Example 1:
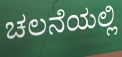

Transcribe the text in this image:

ಚಲನೆಯಲ್ಲಿ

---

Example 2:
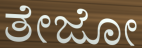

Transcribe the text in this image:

ತೇಜೋ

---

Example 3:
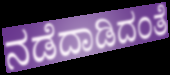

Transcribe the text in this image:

ನಡೆದಾಡಿದಂತೆ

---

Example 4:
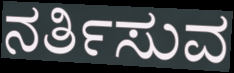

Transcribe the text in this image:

ನರ್ತಿಸುವ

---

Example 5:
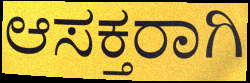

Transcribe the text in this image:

ಆಸಕ್ತರಾಗಿ